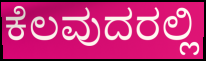
ಕೆಲವುದರಲ್ಲಿ